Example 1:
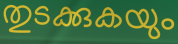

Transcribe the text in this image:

തുടക്കുകയും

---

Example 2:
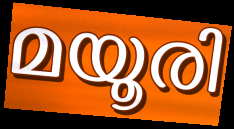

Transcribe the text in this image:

മയൂരി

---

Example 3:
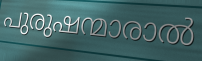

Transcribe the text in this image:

പുരുഷന്മാരാൽ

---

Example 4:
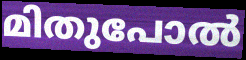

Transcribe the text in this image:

മിതുപോൽ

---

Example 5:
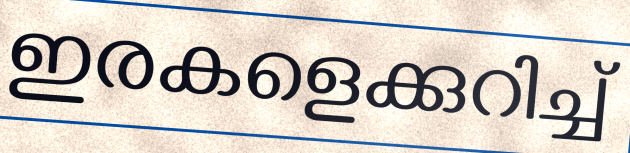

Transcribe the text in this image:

ഇരകളെക്കുറിച്ച്